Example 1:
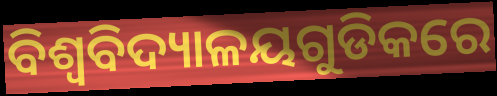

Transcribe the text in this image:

ବିଶ୍ଵବିଦ୍ୟାଳୟଗୁଡିକରେ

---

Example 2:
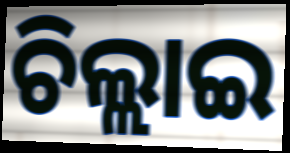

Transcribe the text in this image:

ଚିଲ୍ଲାଇ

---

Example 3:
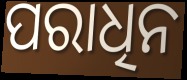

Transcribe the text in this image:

ପରାଧିନ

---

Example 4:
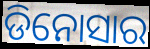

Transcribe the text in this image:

ଡିନୋସାର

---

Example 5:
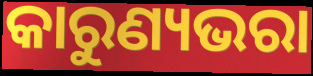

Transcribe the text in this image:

କାରୁଣ୍ୟଭରା